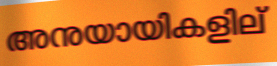
അനുയായികളില്